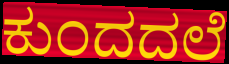
ಕುಂದದಲೆ